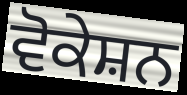
ਵੋਕੇਸ਼ਨ